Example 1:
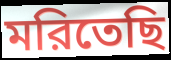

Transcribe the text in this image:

মরিতেছি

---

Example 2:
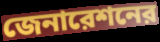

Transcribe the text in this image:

জেনারেশনের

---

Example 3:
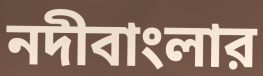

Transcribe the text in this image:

নদীবাংলার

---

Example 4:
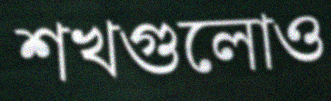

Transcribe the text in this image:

শখগুলোও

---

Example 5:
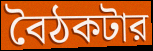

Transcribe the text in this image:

বৈঠকটার